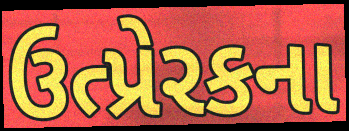
ઉત્પ્રેરકના